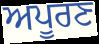
ਅਪੂਰਣ